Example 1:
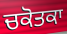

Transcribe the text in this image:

ਚਕੋਤਕਾ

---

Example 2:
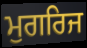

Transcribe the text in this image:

ਮੁਗਰਿਜ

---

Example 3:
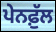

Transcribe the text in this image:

ਪੇਨਫ਼ੁੱਲ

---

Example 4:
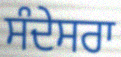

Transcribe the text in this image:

ਸੰਦੇਸਰਾ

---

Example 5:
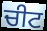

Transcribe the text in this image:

ਚੀਟ